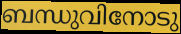
ബന്ധുവിനോടു